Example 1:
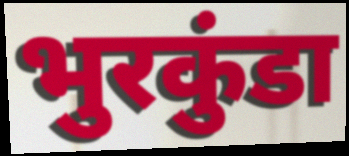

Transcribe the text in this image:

भुरकुंडा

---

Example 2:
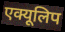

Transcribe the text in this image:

एक्यूलिप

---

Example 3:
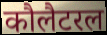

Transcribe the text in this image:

कौलैटरल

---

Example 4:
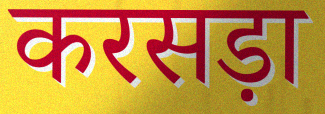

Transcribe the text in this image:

करसड़ा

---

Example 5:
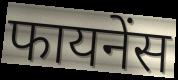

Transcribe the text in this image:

फायनेंस